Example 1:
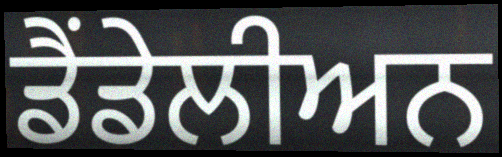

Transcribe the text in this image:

ਡੈਂਡੇਲੀਅਨ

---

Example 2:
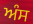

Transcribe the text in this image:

ਅੰਸ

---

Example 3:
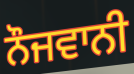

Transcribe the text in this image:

ਨੌਜਵਾਨੀ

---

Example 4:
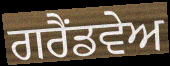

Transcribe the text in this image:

ਗਰੈਂਡਵੇਅ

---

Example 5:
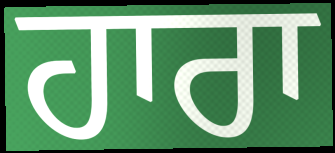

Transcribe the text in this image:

ਹਾਰਾ